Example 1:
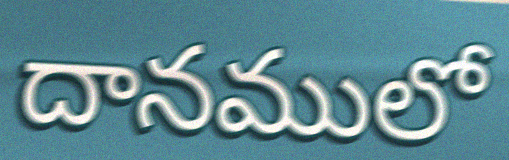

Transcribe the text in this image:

దానములో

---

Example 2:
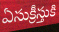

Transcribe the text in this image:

ఏసుక్రీస్తుకి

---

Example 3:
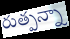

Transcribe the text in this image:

రుత్పన్నా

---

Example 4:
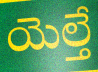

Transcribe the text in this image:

యెల్తే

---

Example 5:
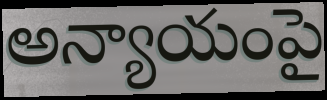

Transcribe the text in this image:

అన్యాయంపై